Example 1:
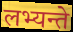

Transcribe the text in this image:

लभ्यन्ते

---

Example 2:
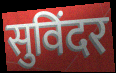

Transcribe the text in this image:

सुविंदर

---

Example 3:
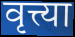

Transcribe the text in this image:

वृत्त्या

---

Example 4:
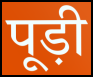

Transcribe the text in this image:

पूड़ी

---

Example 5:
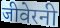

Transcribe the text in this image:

जीवेरनी